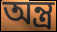
অন্ত্ৰ